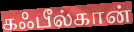
கஃபீல்கான்